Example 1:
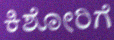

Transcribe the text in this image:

ಕಿಶೋರಿಗೆ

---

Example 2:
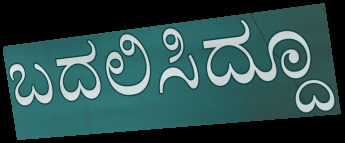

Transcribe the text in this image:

ಬದಲಿಸಿದ್ದೂ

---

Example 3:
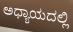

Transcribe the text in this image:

ಅಧ್ಯಾಯದಲ್ಲಿ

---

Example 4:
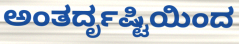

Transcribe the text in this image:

ಅಂತರ್ದೃಷ್ಟಿಯಿಂದ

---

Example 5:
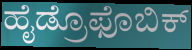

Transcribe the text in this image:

ಹೈಡ್ರೊಫೊಬಿಕ್